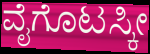
ವೈಗೊಟಸ್ಕೀ